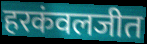
हरकंवलजीत